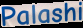
Palashi